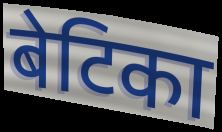
बेटिका